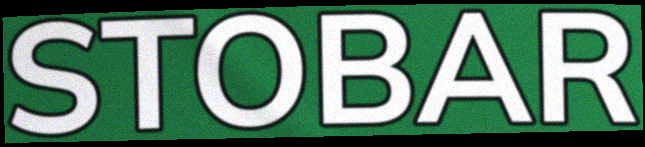
STOBAR